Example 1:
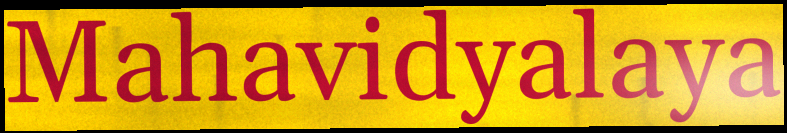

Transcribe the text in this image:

Mahavidyalaya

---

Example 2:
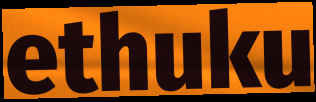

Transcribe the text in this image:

ethuku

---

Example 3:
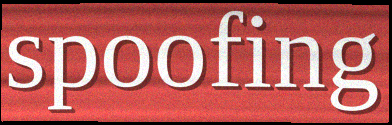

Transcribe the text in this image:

spoofing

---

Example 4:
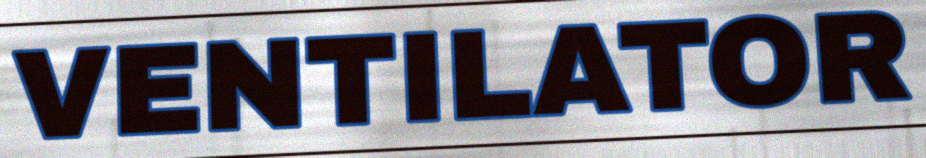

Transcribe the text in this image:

VENTILATOR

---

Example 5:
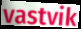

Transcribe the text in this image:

vastvik